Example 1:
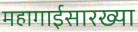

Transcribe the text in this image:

महागाईसारख्या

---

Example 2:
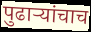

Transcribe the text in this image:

पुढाऱ्यांचाच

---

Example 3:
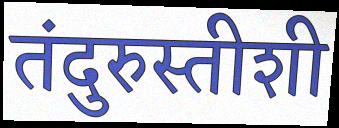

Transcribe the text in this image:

तंदुरुस्तीशी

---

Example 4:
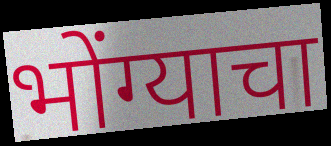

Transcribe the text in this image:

भोंग्याचा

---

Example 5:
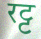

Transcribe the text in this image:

रट्ट